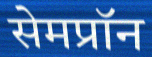
सेमप्रॉन